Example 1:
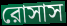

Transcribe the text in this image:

রোসাস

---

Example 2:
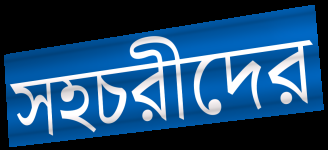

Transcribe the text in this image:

সহচরীদের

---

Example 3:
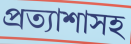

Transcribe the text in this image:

প্রত্যাশাসহ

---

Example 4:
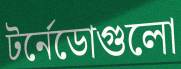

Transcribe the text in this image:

টর্নেডোগুলো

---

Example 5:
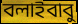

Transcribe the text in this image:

বলাইবাবু